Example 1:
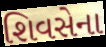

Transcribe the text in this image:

શિવસેના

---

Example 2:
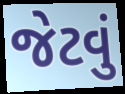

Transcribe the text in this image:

જેટવું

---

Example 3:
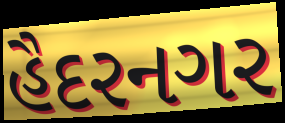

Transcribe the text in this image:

હૈદરનગર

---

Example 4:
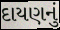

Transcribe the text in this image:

દાયણનું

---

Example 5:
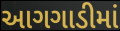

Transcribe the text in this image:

આગગાડીમાં